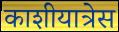
काशीयात्रेस